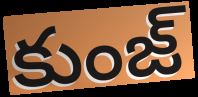
కుంజ్